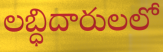
లబ్ధిదారులలో